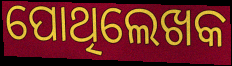
ପୋଥିଲେଖକ